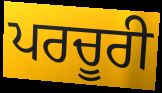
ਪਰਚੂਰੀ